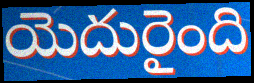
యెదురైంది